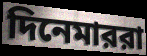
দিনেমাররা